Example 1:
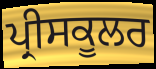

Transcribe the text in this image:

ਪ੍ਰੀਸਕੂਲਰ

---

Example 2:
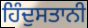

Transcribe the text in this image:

ਹਿੰਦੁਸਤਾਨੀ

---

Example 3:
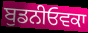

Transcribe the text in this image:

ਬੁਡਨੀਓਵਕਾ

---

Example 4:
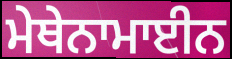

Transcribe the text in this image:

ਮੇਥੇਨਾਮਾਈਨ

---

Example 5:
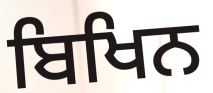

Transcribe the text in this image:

ਬਿਖਿਨ